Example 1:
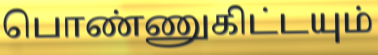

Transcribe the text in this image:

பொண்ணுகிட்டயும்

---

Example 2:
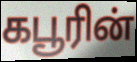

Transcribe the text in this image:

கபூரின்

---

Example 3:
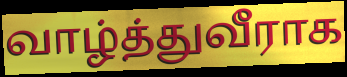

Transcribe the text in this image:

வாழ்த்துவீராக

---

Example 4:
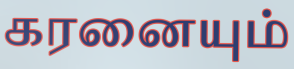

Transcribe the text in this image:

கரனையும்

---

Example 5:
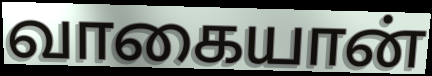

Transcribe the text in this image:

வாகையான்